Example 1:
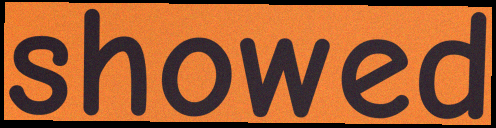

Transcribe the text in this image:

showed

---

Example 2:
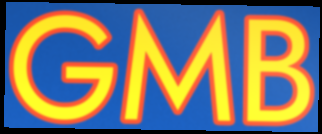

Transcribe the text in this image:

GMB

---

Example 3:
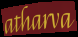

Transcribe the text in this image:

atharva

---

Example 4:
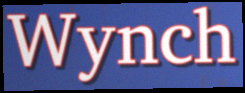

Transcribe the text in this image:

Wynch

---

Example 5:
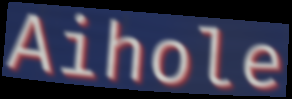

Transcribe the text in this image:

Aihole